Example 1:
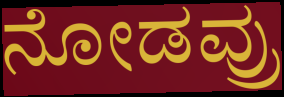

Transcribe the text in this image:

ನೋಡವ್ರು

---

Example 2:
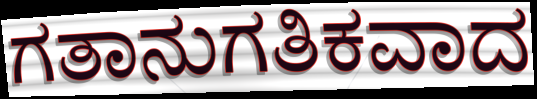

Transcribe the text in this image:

ಗತಾನುಗತಿಕವಾದ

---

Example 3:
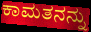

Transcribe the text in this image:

ಕಾಮತನನ್ನು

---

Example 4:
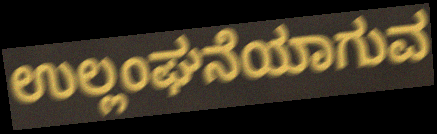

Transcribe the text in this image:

ಉಲ್ಲಂಘನೆಯಾಗುವ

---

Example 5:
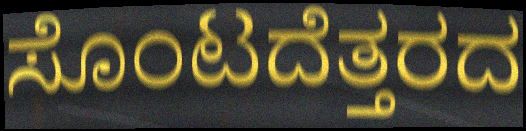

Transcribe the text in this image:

ಸೊಂಟದೆತ್ತರದ